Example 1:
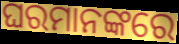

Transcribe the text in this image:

ଘରମାନଙ୍କରେ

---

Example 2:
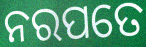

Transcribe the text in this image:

ନରପତେ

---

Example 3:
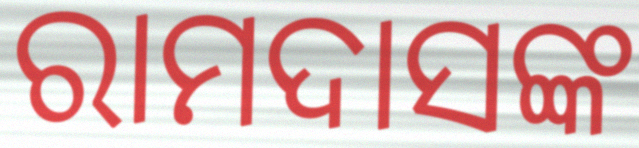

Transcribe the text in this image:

ରାମଦାସଙ୍କ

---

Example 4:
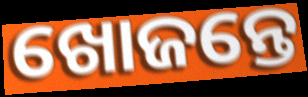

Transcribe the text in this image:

ଖୋଜନ୍ତେ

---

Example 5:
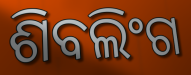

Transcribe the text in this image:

ଶିବଲିଂଗ